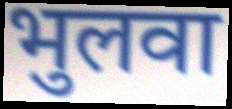
भुलवा